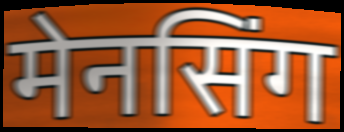
मेनसिंग